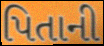
પિતાની